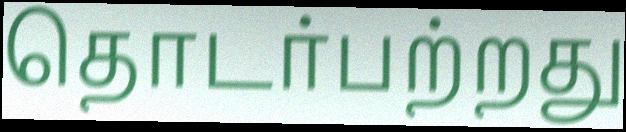
தொடர்பற்றது